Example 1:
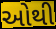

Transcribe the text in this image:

ઓથી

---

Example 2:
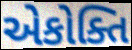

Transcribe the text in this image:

એકોક્તિ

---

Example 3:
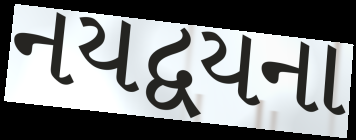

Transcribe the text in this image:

નયદ્વયના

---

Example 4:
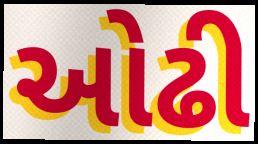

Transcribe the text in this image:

ઓઢી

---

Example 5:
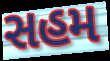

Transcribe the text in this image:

સહમ